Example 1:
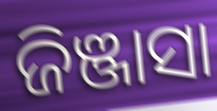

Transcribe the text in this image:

ଜିଞ୍ଜାସା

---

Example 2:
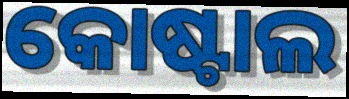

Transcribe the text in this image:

କୋଷ୍ଟାଲ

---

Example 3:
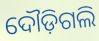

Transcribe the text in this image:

ଦୌଡ଼ିଗଲି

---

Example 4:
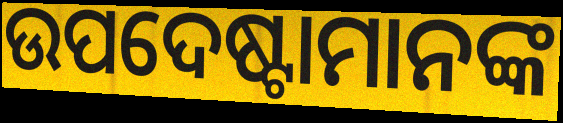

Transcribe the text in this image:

ଉପଦେଷ୍ଟାମାନଙ୍କ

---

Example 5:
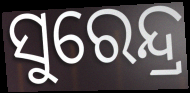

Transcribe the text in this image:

ସୁରେନ୍ଦ୍ର